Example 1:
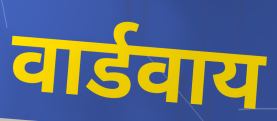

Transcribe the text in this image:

वार्डवाय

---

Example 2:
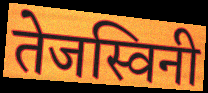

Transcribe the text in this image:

तेजस्विनी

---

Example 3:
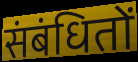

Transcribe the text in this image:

संबंधितों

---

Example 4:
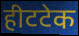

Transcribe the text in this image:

हीटटेक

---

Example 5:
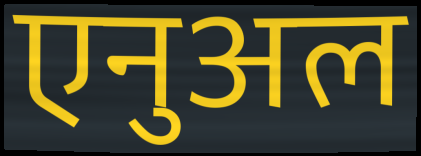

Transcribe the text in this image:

एनुअल